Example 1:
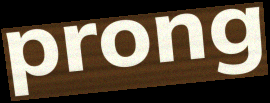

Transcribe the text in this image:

prong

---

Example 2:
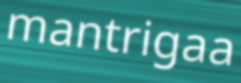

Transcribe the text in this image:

mantrigaa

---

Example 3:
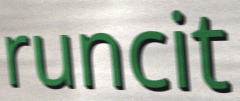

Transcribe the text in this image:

runcit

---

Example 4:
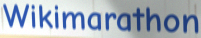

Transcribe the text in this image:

Wikimarathon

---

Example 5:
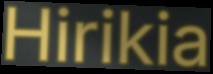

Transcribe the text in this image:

Hirikia